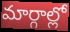
మార్గాల్లో